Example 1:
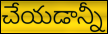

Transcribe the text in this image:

చేయడాన్నీ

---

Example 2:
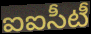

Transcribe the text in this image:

ఐఐసీటీ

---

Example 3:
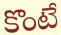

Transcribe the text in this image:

కొంటే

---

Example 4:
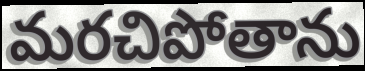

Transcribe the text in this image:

మరచిపోతాను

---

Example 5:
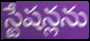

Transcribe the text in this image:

స్టేషన్లను